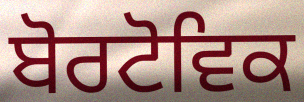
ਬੋਰਟੋਵਿਕ